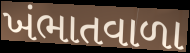
ખંભાતવાળા